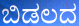
ಬಿಡಲದ